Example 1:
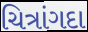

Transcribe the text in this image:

ચિત્રાંગદા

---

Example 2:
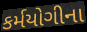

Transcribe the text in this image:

કર્મયોગીના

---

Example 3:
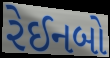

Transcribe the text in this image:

રેઈનબો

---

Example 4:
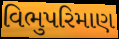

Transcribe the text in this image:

વિભુપરિમાણ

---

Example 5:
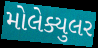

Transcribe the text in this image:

મોલેક્યુલર